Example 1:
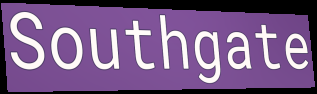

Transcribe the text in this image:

Southgate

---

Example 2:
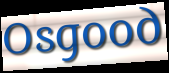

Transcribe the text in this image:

Osgood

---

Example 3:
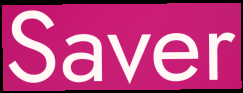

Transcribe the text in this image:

Saver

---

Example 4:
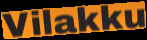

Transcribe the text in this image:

Vilakku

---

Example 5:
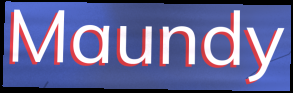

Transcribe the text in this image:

Maundy